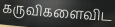
கருவிகளைவிட